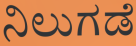
ನಿಲುಗಡೆ